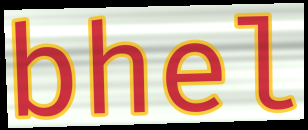
bhel